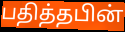
பதித்தபின்